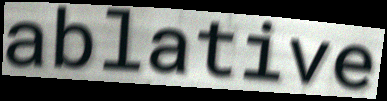
ablative